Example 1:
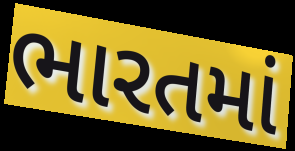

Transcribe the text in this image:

ભારતમાં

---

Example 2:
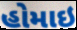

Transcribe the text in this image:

હોમાઇ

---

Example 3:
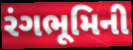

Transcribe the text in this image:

રંગભૂમિની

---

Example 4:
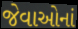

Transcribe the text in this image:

જેવાઓનાં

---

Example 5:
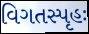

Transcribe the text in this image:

વિગતસ્પૃહઃ